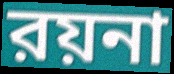
রয়না